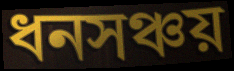
ধনসঞ্চয়